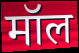
मॉल